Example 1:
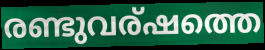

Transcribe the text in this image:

രണ്ടുവര്ഷത്തെ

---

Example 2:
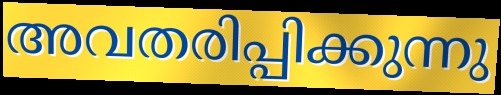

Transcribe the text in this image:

അവതരിപ്പിക്കുന്നു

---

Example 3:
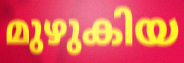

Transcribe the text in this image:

മുഴുകിയ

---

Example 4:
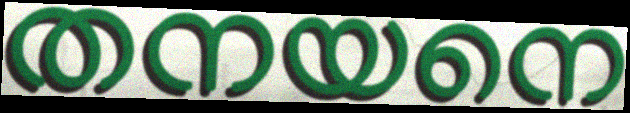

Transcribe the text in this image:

തനയനെ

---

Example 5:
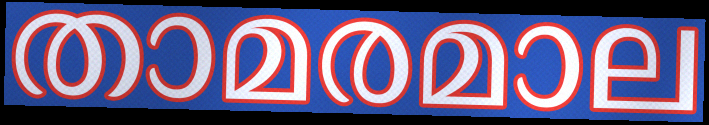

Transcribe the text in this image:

താമരമാല